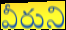
వీరుని